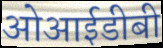
ओआईडीबी